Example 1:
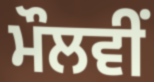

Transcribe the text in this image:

ਮੌਲਵੀਂ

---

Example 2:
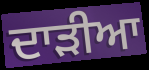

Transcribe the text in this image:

ਦਾੜੀਆ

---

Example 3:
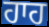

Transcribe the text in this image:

ਹਾਹ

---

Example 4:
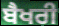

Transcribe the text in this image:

ਬੈਖਰੀ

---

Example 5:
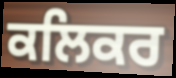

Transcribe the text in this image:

ਕਲਿਕਰ